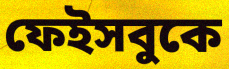
ফেইসবুকে